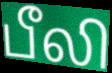
பீலி